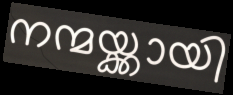
നന്മയ്ക്കായി